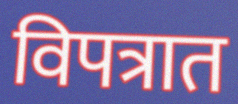
विपत्रात